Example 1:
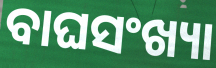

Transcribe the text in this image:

ବାଘସଂଖ୍ୟା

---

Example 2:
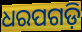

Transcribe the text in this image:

ଧରପଗଡ଼ି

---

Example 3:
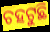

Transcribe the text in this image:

ଚହଟୁଛି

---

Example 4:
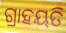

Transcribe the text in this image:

ଗ୍ରାହୟତି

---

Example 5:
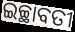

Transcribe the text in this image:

ଇଚ୍ଛାବତୀ